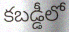
కబడ్డీలో